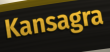
Kansagra